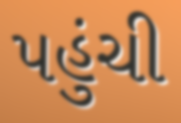
પહુંચી